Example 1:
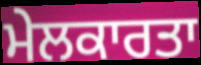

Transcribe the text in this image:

ਮੇਲਕਾਰਤਾ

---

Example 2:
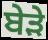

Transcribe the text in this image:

ਬੇੜੇ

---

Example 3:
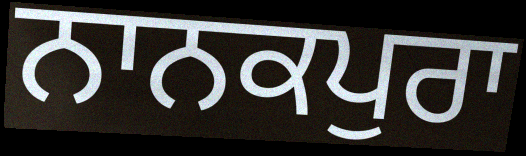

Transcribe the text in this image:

ਨਾਨਕਪੁਰਾ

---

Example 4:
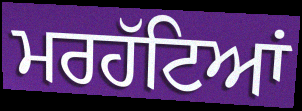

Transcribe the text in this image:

ਮਰਹੱਟਿਆਂ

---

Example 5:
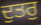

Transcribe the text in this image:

ਦੁਤਰੁ